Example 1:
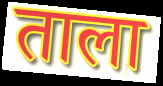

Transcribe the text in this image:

ताला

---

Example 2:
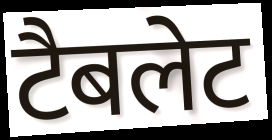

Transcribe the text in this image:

टैबलेट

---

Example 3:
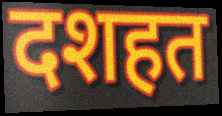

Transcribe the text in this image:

दशहत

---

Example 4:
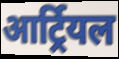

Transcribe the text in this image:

आर्ट्रियल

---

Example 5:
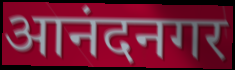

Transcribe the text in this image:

आनंदनगर